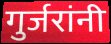
गुर्जरांनी